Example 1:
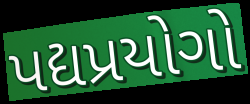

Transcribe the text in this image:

પદ્યપ્રયોગો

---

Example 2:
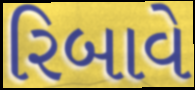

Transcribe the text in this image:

રિબાવે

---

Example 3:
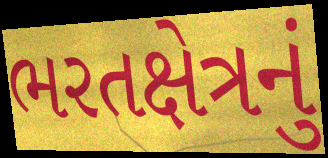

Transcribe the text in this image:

ભરતક્ષેત્રનું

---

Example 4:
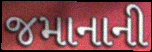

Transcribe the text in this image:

જમાનાની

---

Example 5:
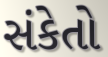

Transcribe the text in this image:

સંકેતો